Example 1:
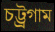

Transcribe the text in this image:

চট্ট্রগাম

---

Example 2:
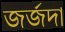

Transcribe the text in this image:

জর্জদা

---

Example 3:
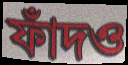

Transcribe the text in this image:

ফাঁদও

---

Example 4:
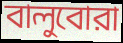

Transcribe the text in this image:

বালুবোরা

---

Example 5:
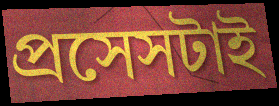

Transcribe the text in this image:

প্রসেসটাই